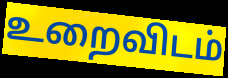
உறைவிடம்